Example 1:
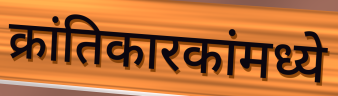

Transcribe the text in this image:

क्रांतिकारकांमध्ये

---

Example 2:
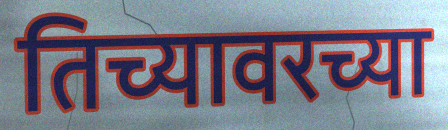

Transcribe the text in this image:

तिच्यावरच्या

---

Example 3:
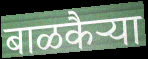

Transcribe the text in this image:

बाळकैऱ्या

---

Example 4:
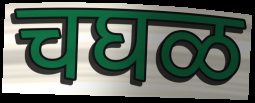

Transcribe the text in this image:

चघळ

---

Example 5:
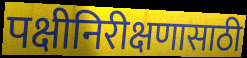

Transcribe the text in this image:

पक्षीनिरीक्षणासाठी